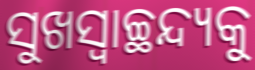
ସୁଖସ୍ଵାଚ୍ଛନ୍ଦ୍ୟକୁ